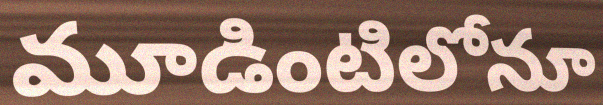
మూడింటిలోనూ